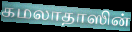
கமலாதாஸின்